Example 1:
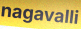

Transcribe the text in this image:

nagavalli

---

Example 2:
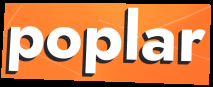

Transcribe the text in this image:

poplar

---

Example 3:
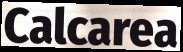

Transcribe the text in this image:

Calcarea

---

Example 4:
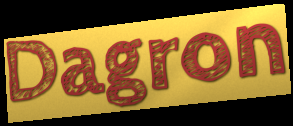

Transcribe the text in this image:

Dagron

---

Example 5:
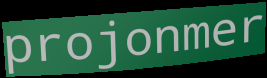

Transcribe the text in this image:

projonmer